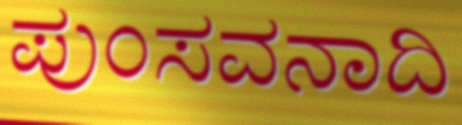
ಪುಂಸವನಾದಿ